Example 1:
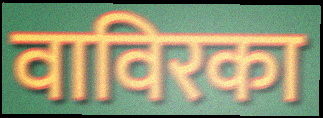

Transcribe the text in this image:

वाविरका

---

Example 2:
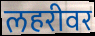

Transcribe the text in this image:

लहरीवर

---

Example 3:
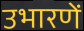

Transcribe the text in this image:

उभारणें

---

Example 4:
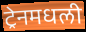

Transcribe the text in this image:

ट्रेनमधली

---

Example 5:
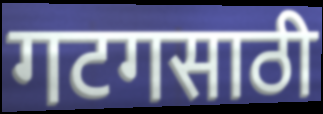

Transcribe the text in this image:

गटगसाठी